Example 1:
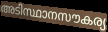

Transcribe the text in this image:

അടിസ്ഥാനസൗകര്യ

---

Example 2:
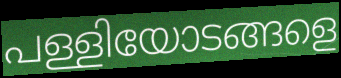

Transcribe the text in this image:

പള്ളിയോടങ്ങളെ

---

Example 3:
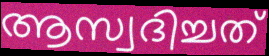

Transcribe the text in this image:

ആസ്വദിച്ചത്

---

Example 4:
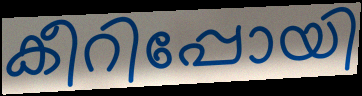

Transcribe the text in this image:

കീറിപ്പോയി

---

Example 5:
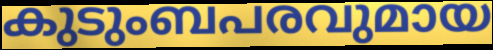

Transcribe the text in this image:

കുടുംബപരവുമായ